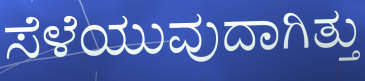
ಸೆಳೆಯುವುದಾಗಿತ್ತು